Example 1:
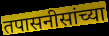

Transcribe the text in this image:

तपासनीसांच्या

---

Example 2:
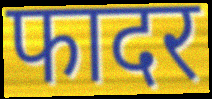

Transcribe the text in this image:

फादर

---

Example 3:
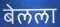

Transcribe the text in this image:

बेलला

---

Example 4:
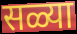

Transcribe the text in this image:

सळ्या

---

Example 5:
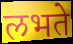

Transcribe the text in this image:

लभते